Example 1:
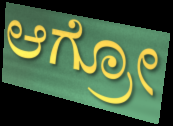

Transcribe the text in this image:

ಆಗ್ರೋ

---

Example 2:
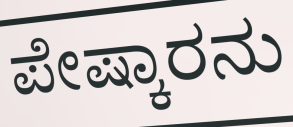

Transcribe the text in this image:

ಪೇಷ್ಕಾರನು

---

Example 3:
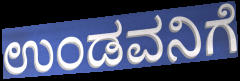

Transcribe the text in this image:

ಉಂಡವನಿಗೆ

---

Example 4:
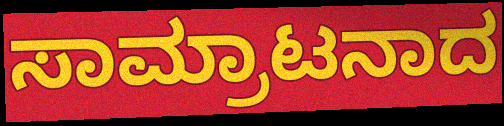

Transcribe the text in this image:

ಸಾಮ್ರಾಟನಾದ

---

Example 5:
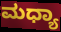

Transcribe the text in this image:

ಮಧ್ಯಾ